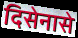
दिसेनासे